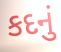
કદનું